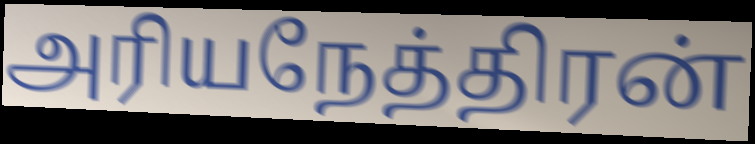
அரியநேத்திரன்